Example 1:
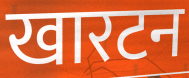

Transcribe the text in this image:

खारटन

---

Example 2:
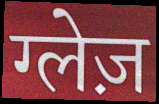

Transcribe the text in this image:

ग्लेज़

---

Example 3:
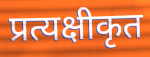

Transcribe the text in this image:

प्रत्यक्षीकृत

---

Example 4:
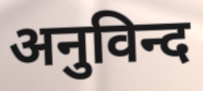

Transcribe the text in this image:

अनुविन्द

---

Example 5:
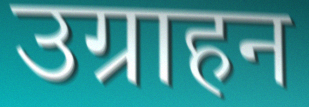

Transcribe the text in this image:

उग्राहन